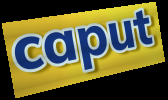
caput